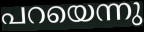
പറയെന്നു